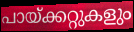
പായ്ക്കറ്റുകളും